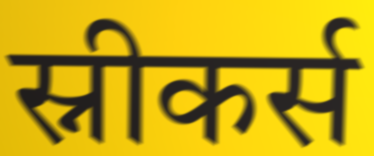
स्नीकर्स